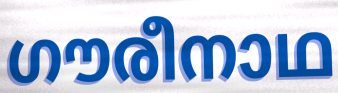
ഗൗരീനാഥ